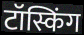
टॉस्किंग